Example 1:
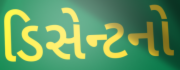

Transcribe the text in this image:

ડિસેન્ટનો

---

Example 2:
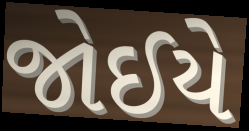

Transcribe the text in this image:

જોઈયે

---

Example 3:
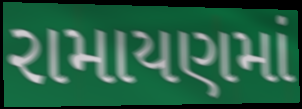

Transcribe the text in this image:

રામાયણમાં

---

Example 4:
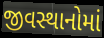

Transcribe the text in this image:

જીવસ્થાનોમાં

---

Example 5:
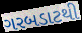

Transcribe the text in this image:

ગરબડાટથી